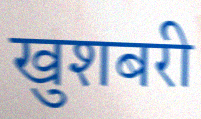
खुशबरी